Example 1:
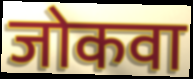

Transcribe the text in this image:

जोकवा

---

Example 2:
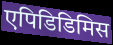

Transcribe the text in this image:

एपिडिडिमिस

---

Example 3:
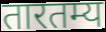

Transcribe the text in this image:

तारतम्य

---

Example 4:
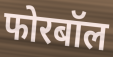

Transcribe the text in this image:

फोरबॉल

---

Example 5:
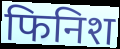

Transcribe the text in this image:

फिनिश